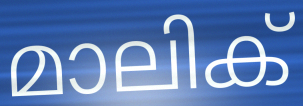
മാലിക്